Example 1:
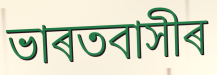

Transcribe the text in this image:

ভাৰতবাসীৰ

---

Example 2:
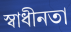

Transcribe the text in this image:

স্বাধীনতা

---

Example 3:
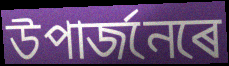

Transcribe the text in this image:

উপাৰ্জনেৰে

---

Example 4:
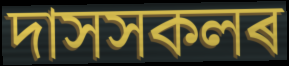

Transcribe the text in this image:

দাসসকলৰ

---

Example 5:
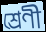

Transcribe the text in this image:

শ্ৰেণী